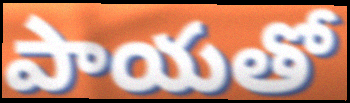
పాయతో